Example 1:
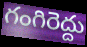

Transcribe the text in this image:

గంగిరెద్దు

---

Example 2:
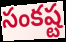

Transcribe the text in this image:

సంకష్ట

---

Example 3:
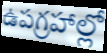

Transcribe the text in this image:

ఉపగ్రహాల్లో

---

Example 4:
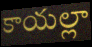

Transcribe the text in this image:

కాయల్లా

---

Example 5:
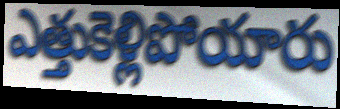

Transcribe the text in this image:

ఎత్తుకెళ్లిపోయారు